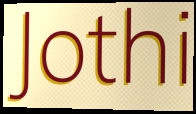
Jothi